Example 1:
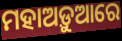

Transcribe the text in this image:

ମହାଅଡ଼ୁଆରେ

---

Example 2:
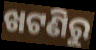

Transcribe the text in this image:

ଖଟଣିରୁ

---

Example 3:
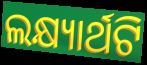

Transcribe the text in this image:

ଲକ୍ଷ୍ୟାର୍ଥଟି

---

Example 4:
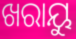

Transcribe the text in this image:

ଖରାୟୁ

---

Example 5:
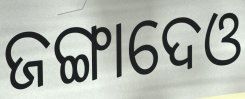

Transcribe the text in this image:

ଜଙ୍ଗାଦେଓ